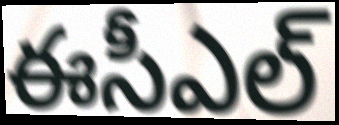
ఈసీఎల్